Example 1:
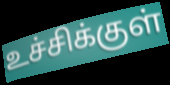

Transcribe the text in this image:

உச்சிக்குள்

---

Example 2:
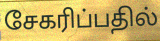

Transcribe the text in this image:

சேகரிப்பதில்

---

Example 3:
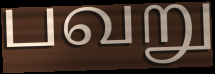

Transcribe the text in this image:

பவறு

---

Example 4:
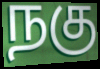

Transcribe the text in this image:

நகு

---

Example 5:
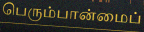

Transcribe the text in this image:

பெரும்பான்மைப்